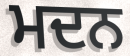
ਮਦਨ